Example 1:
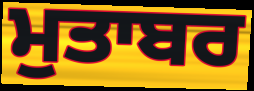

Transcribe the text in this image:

ਮੁਤਾਬਰ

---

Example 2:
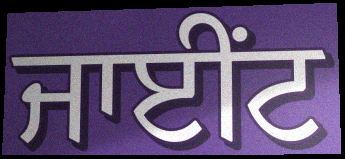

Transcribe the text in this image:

ਜਾਈਂਟ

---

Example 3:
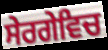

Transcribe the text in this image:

ਸੇਰਗੇਵਿਚ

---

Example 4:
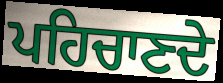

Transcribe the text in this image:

ਪਹਿਚਾਣਦੇ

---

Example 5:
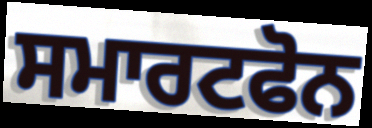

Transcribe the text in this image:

ਸਮਾਰਟਫੋਨ